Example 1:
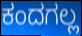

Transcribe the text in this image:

ಕಂದಗಲ್ಲ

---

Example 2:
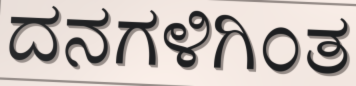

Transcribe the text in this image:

ದನಗಳಿಗಿಂತ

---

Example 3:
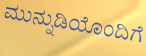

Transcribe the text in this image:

ಮುನ್ನುಡಿಯೊಂದಿಗೆ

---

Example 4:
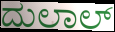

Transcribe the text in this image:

ದುಲಾಲ್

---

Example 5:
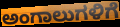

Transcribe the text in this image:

ಅಂಗಾಲುಗಳಿಗೆ